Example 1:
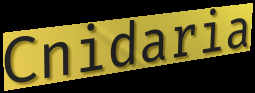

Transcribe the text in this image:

Cnidaria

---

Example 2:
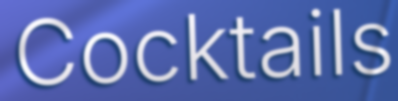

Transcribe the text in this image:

Cocktails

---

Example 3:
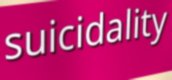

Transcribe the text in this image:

suicidality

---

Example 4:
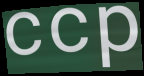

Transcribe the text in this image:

ccp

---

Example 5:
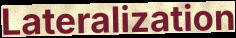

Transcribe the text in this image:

Lateralization